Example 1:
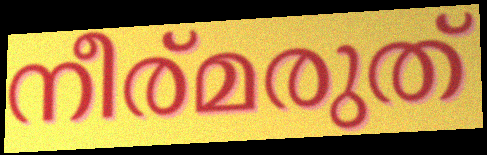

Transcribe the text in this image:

നീര്മരുത്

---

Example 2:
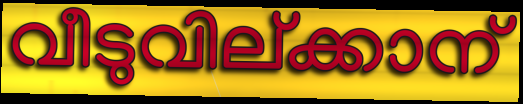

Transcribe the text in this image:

വീടുവില്ക്കാന്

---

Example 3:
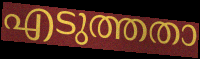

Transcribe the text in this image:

എടുത്തതാ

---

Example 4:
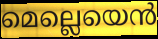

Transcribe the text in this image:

മെല്ലെയെൻ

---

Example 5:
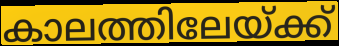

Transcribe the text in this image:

കാലത്തിലേയ്ക്ക്